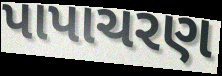
પાપાચરણ